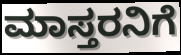
ಮಾಸ್ತರನಿಗೆ